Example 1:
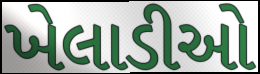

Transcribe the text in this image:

ખેલાડીઓ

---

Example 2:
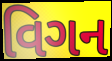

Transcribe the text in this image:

વિગન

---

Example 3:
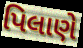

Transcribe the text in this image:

પિલાણે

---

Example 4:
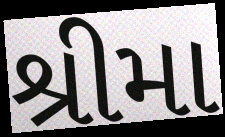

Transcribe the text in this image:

શ્રીમા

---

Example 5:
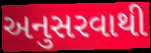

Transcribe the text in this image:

અનુસરવાથી